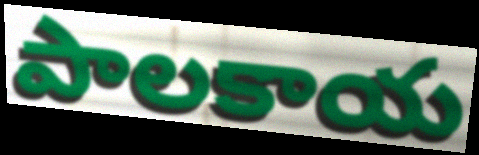
పాలకాయ